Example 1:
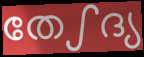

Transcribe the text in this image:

തേഽദ്യ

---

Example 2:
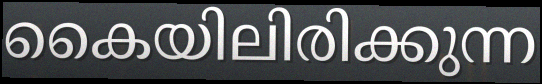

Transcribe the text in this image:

കൈയിലിരിക്കുന്ന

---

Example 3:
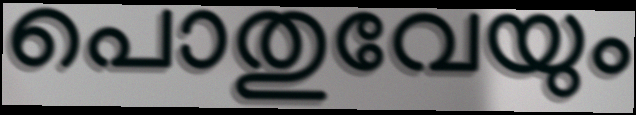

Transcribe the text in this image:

പൊതുവേയും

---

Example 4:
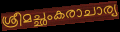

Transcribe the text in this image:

ശ്രീമച്ഛംകരാചാര്യ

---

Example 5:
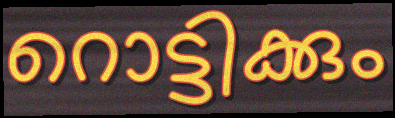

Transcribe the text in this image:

റൊട്ടിക്കും